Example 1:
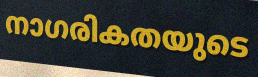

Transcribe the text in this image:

നാഗരികതയുടെ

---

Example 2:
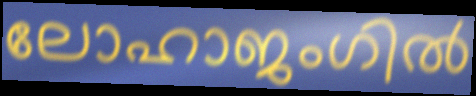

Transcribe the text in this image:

ലോഹാജംഗിൽ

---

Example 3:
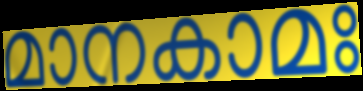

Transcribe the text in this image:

മാനകാമഃ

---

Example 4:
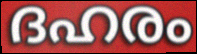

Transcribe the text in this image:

ദഹരം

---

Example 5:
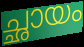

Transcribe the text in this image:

ച്ഛായം